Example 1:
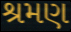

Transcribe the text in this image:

શ્રમણ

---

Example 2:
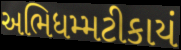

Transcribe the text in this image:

અભિધમ્મટીકાયં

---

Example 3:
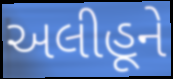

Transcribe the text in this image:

અલીહૂને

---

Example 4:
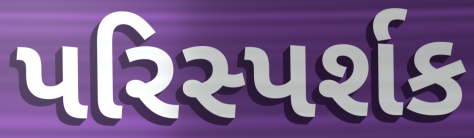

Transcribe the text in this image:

પરિસ્પર્શક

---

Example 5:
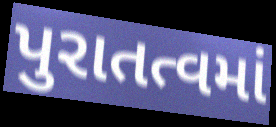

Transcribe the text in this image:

પુરાતત્વમાં